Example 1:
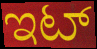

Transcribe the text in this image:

ಇಟ್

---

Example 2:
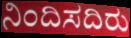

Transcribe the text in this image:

ನಿಂದಿಸದಿರು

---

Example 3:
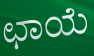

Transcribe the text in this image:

ಛಾಯೆ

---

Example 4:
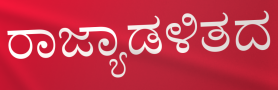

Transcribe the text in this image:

ರಾಜ್ಯಾಡಳಿತದ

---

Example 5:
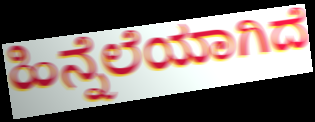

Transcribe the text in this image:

ಹಿನ್ನೆಲೆಯಾಗಿದೆ